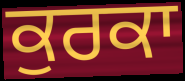
ਕੁਰਕਾ